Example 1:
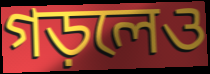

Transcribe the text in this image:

গড়লেও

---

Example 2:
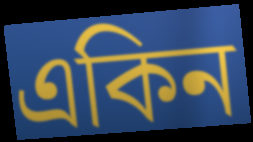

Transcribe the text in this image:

একিন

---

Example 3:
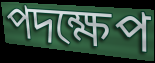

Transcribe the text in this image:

পদক্ষেপ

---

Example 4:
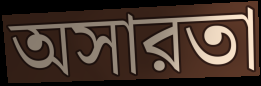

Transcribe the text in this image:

অসারতা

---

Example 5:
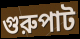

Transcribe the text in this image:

গুরুপাট